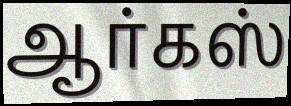
ஆர்கஸ்